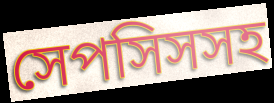
সেপসিসসহ